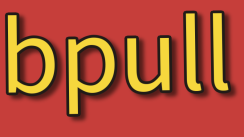
bpull